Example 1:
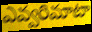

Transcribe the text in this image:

ఎవ్వరిమాటా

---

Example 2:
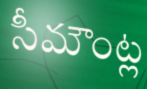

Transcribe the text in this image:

సీమౌంట్ల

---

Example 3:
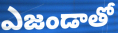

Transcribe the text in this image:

ఎజండాతో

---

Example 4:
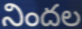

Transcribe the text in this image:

నిందల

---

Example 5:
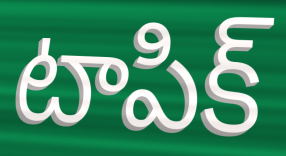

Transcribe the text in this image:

టాపిక్